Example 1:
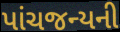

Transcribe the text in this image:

પાંચજન્યની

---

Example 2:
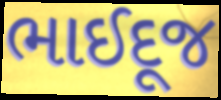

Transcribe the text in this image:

ભાઈદૂજ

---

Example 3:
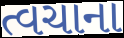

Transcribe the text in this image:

ત્વચાના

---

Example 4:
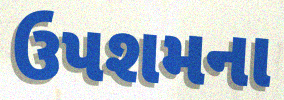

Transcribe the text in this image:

ઉપશમના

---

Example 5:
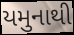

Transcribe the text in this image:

યમુનાથી